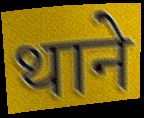
थाने